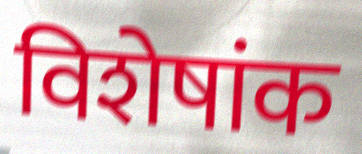
विशेषांक